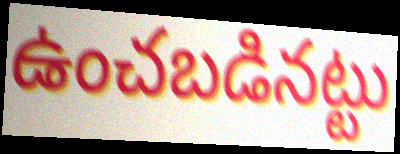
ఉంచబడినట్టు